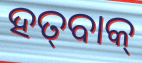
ହତ୍‌ବାକ୍